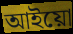
আইয়ো